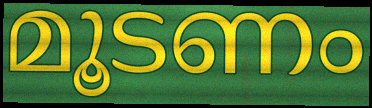
മൂടണം